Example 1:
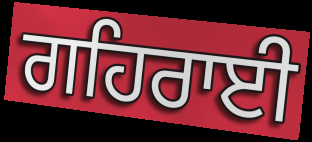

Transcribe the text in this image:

ਗਹਿਰਾਈ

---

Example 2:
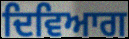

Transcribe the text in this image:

ਦਿਵਿਆਗ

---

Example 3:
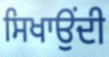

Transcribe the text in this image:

ਸਿਖਾਉਂਦੀ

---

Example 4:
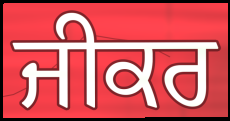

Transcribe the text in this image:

ਜੀਕਰ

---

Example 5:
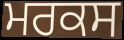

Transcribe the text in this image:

ਮਰਕਸ